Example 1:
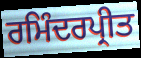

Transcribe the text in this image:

ਰਮਿੰਦਰਪ੍ਰੀਤ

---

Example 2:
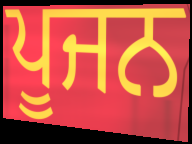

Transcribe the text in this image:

ਪੂਜਨ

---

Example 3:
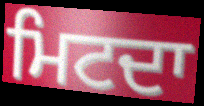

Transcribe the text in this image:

ਮਿਟਦਾ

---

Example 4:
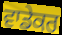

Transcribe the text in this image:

ਵਾਡੇਕਰ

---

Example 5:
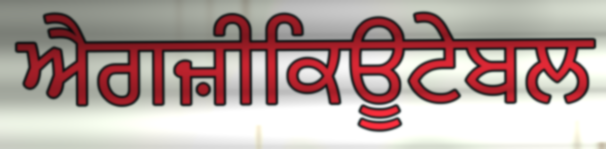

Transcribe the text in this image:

ਐਗਜ਼ੀਕਿਊਟੇਬਲ